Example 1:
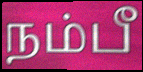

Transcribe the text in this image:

நம்பீ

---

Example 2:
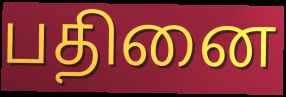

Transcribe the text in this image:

பதினை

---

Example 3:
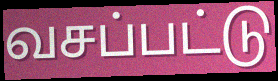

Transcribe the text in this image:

வசப்பட்டு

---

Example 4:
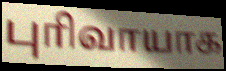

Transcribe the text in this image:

புரிவாயாக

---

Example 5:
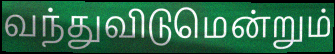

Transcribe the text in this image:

வந்துவிடுமென்றும்